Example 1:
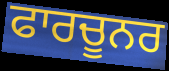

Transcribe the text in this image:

ਫਾਰਚੂਨਰ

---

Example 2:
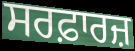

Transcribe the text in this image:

ਸਰਫ਼ਾਰਜ਼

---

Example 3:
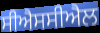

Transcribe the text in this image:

ਸੀਐਸਸੀਐਲ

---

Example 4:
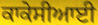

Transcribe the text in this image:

ਕਾਕੇਸੀਆਈ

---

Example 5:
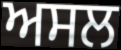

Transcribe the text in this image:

ਅਸਲ